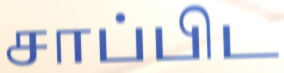
சாப்பிட